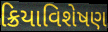
ક્રિયાવિશેષણ